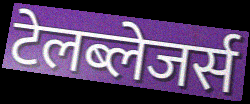
टेलब्लेजर्स